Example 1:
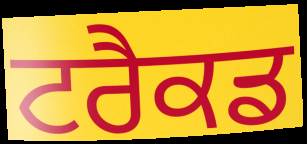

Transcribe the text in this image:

ਟਰੈਕਡ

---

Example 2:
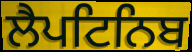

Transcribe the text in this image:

ਲੈਪਟਿਨਿਬ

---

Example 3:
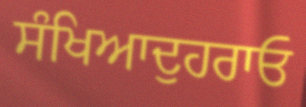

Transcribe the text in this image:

ਸੰਖਿਆਦੁਹਰਾਓ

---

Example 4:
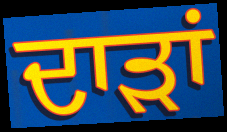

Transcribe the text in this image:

ਦਾੜਾਂ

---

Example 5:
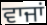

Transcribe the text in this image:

ਵਾਜਾਂ